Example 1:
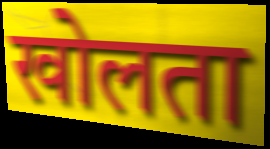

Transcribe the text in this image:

खोलता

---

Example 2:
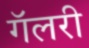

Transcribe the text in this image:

गॅलरी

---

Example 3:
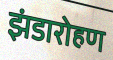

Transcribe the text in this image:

झंडारोहण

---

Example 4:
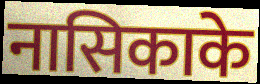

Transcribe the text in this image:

नासिकाके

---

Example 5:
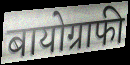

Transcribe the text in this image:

बायोग्राफी